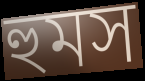
হুমস